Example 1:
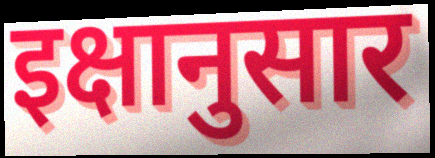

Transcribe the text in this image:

इक्षानुसार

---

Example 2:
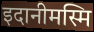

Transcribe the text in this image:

इदानीमस्मि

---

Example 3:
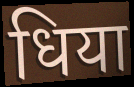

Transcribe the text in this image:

धिया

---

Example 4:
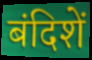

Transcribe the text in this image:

बंदिशें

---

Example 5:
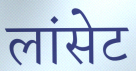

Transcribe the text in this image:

लांसेट